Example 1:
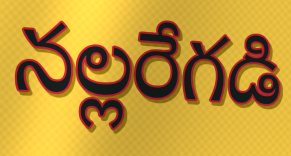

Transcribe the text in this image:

నల్లరేగడి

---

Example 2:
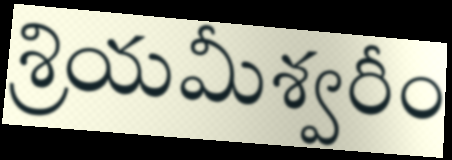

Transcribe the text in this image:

శ్రియమీశ్వరీం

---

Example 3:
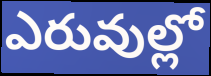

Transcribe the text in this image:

ఎరువుల్లో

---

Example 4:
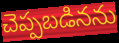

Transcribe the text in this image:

చెప్పబడినను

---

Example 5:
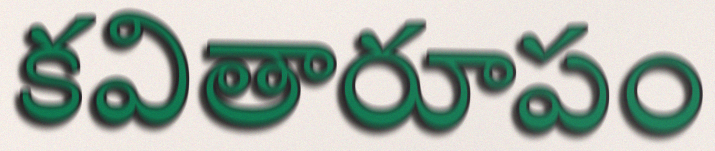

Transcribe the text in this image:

కవితారూపం